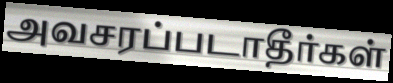
அவசரப்படாதீர்கள்